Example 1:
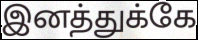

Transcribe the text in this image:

இனத்துக்கே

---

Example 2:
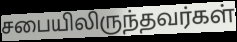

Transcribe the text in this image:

சபையிலிருந்தவர்கள்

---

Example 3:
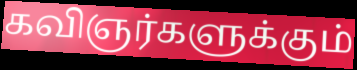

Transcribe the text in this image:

கவிஞர்களுக்கும்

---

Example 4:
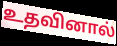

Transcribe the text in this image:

உதவினால்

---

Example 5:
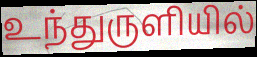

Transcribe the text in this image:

உந்துருளியில்